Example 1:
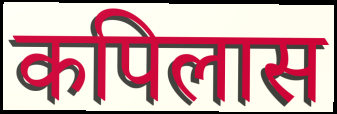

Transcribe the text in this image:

कपिलास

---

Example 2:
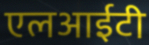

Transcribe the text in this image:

एलआईटी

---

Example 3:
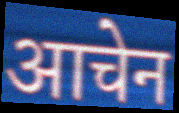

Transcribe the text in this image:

आचेन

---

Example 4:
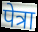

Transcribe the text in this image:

पेत्रा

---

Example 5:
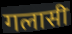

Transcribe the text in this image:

गलासी